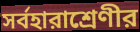
সর্বহারাশ্রেণীর